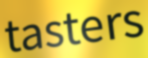
tasters